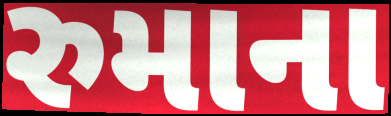
રુમાના